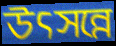
উৎসন্নে